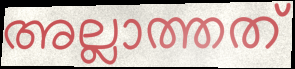
അല്ലാത്തത്